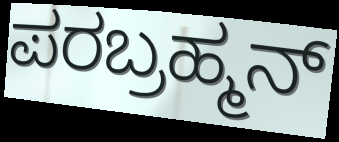
ಪರಬ್ರಹ್ಮನ್